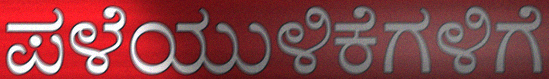
ಪಳೆಯುಳಿಕೆಗಳಿಗೆ